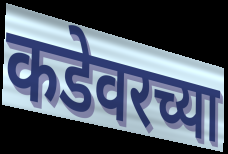
कडेवरच्या